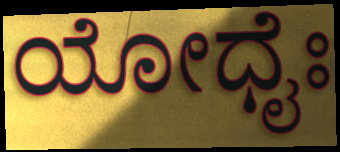
ಯೋಧೈಃ